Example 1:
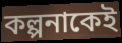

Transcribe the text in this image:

কল্পনাকেই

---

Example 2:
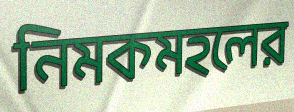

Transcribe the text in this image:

নিমকমহলের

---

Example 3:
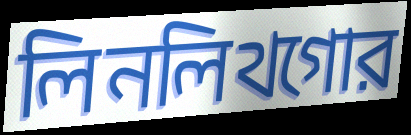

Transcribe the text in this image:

লিনলিথগোর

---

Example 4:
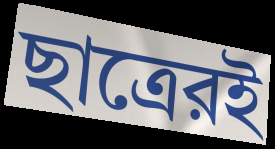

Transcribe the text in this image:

ছাত্রেরই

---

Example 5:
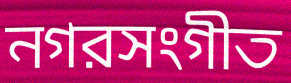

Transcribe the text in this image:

নগরসংগীত